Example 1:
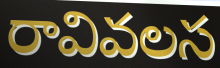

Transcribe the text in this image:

రావివలస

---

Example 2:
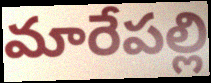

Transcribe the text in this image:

మారేపల్లి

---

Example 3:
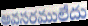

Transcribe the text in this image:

అవసరములేదు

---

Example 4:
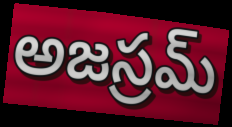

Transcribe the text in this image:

అజస్రమ్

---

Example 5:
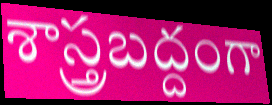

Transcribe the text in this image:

శాస్త్రబద్దంగా